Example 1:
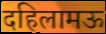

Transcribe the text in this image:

दहिलामऊ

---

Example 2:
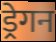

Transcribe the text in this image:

ड्रेगन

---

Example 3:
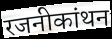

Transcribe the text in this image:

रजनीकांथन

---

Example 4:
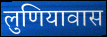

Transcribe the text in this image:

लुणियावास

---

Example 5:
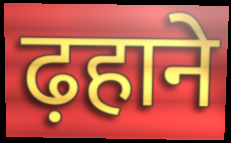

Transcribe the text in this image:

ढ़हाने